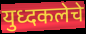
युध्दकलेचे